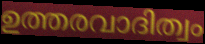
ഉത്തരവാദിത്വം